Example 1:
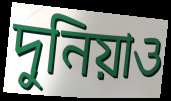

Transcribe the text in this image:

দুনিয়াও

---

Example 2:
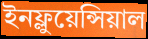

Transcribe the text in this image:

ইনফ্লুয়েন্সিয়াল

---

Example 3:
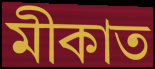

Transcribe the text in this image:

মীকাত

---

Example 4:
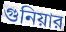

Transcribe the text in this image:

গুনিয়ার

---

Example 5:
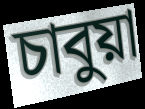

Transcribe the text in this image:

চাবুয়া